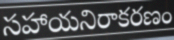
సహాయనిరాకరణం